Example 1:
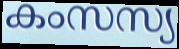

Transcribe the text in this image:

കംസസ്യ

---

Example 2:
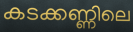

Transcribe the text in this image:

കടക്കണ്ണിലെ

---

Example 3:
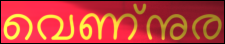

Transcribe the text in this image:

വെണ്നുര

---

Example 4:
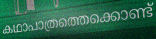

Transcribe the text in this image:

കഥാപാത്രത്തെക്കൊണ്ട്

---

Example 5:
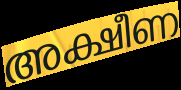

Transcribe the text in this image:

അക്ഷീണ